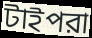
টাইপরা